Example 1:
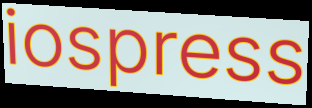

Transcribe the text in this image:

iospress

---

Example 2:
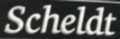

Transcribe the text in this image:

Scheldt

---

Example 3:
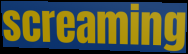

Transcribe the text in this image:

screaming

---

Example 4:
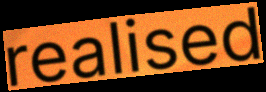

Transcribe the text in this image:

realised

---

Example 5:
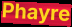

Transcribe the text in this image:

Phayre